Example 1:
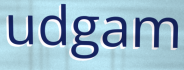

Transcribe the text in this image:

udgam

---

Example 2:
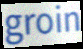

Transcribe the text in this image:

groin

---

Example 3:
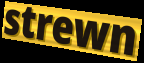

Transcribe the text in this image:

strewn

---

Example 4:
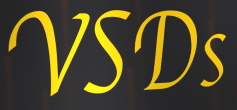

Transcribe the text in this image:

VSDs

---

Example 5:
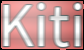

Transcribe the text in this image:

Kiti